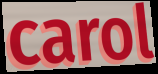
carol